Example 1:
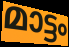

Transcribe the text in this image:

മാട്ടം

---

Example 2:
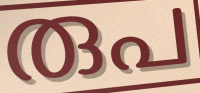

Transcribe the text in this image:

രുപ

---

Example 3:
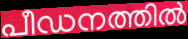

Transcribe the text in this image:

പീഡനത്തിൽ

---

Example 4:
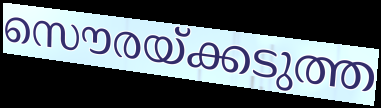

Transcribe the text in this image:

സൌരയ്ക്കടുത്ത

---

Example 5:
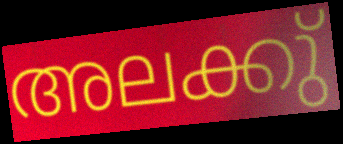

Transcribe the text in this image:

അലക്കു്